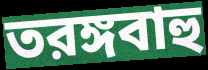
তরঙ্গবাহু